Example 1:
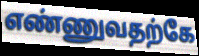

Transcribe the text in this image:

எண்ணுவதற்கே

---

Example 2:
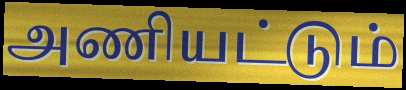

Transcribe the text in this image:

அணியட்டும்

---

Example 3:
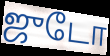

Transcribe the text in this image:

ஜுடோ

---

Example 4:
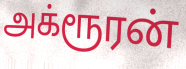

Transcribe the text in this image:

அக்ரூரன்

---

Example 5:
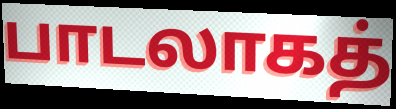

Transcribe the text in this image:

பாடலாகத்